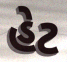
હેટ